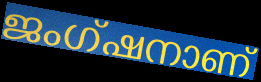
ജംഗ്ഷനാണ്